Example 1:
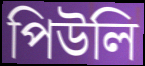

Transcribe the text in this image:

পিউলি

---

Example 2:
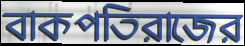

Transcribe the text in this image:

বাকপতিরাজের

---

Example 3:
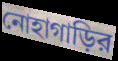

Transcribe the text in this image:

নোহাগাড়ির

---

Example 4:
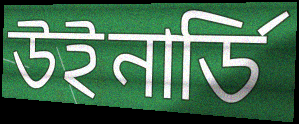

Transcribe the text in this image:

উইনার্ডি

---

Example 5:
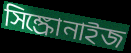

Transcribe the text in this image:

সিঙ্ক্রোনাইজ